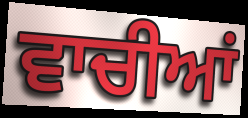
ਵਾਚੀਆਂ